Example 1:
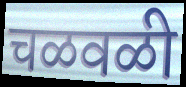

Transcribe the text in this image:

चळवळी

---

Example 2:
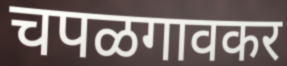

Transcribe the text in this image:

चपळगावकर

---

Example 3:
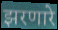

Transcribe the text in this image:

झरणारे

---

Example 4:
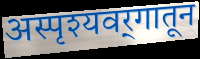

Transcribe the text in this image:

अस्पृश्यवर्गातून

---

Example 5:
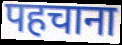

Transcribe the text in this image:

पहचाना